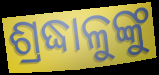
ଶ୍ରଦ୍ଧାଳୁଙ୍କୁ